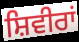
ਸ਼ਿਵੀਰਾਂ